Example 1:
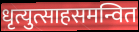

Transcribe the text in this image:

धृत्युत्साहसमन्वित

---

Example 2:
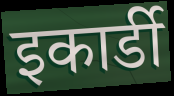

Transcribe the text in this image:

इकार्डी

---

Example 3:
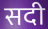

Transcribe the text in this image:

सदी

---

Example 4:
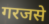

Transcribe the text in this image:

गरजसे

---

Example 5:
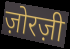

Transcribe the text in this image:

ज़ोरज़ी